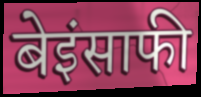
बेइंसाफी